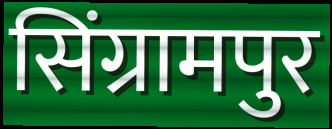
सिंग्रामपुर